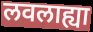
लवलाह्या